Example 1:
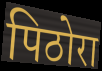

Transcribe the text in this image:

पिठोरा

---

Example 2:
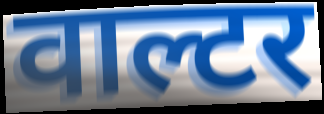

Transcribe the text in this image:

वाल्टर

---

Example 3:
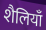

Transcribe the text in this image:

शैलियाँ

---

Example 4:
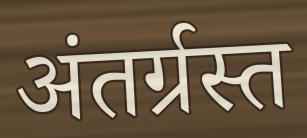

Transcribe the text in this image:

अंतर्ग्रस्त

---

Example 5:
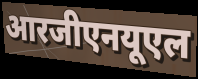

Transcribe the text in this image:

आरजीएनयूएल